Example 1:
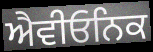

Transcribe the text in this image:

ਐਵੀਓਨਿਕ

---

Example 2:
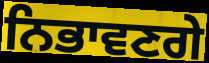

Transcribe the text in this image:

ਨਿਭਾਵਣਗੇ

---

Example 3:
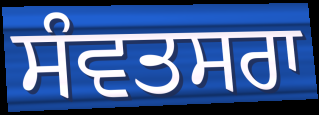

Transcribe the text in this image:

ਸੰਵਤਸਰਾ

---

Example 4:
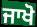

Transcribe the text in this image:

ਜਾਖੋ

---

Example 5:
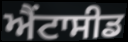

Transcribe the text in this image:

ਐਂਟਾਸੀਡ